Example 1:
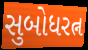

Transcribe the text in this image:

સુબોધરત્ન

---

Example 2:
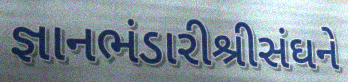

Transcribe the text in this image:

જ્ઞાનભંડારીશ્રીસંઘને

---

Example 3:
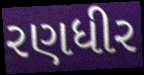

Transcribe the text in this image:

રણધીર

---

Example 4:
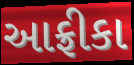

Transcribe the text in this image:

આફ્રીકા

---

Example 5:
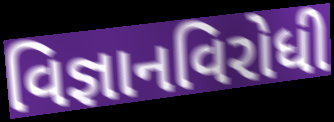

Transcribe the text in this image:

વિજ્ઞાનવિરોધી